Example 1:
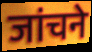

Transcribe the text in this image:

जांचने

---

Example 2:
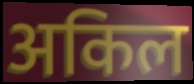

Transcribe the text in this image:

अकिल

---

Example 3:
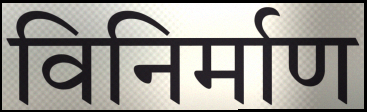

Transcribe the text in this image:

विनिर्माण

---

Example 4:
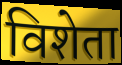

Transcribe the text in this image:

विशेता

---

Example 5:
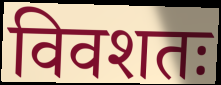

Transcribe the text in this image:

विवशतः